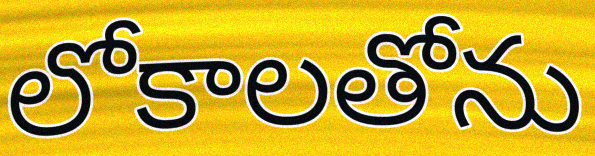
లోకాలతోను